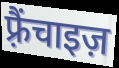
फ़्रैंचाइज़